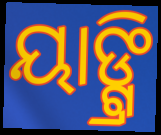
ୟାଙ୍ଗ୍ରି